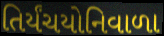
તિર્યંચયોનિવાળા